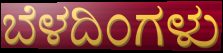
ಬೆಳದಿಂಗಳು